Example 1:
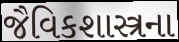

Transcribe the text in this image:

જૈવિકશાસ્ત્રના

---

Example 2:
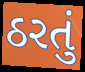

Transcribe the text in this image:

ઠરતું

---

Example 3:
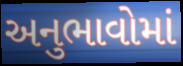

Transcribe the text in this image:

અનુભાવોમાં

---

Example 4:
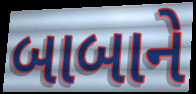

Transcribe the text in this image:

બાબાને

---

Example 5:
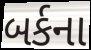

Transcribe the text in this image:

બર્કના